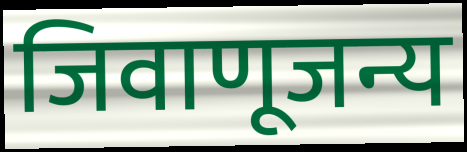
जिवाणूजन्य